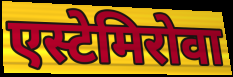
एस्टेमिरोवा